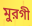
মুরগী